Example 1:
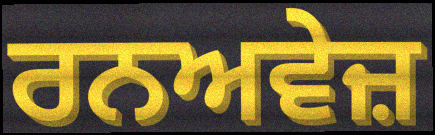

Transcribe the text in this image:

ਰਨਅਵੇਜ਼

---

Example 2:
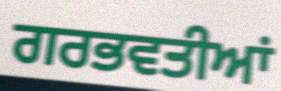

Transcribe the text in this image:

ਗਰਭਵਤੀਆਂ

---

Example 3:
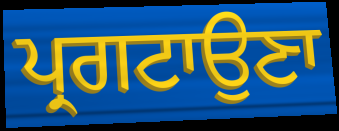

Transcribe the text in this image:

ਪ੍ਰਗਟਾਉਣਾ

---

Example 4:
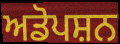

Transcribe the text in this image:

ਅਡੋਪਸ਼ਨ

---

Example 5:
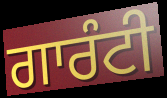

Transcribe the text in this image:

ਗਾਰੰਟੀ